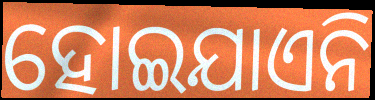
ହୋଇଯାଏନି